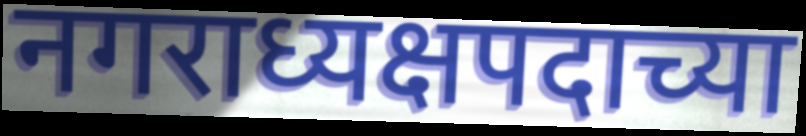
नगराध्यक्षपदाच्या